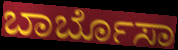
ಬಾರ್ಬೊಸಾ